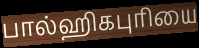
பால்ஹிகபுரியை